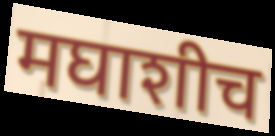
मघाशीच